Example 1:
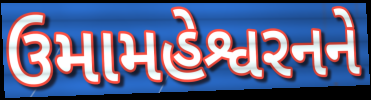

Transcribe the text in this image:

ઉમામહેશ્વરનને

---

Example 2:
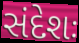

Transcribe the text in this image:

સંદેશઃ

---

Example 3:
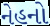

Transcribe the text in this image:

નેહનો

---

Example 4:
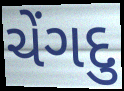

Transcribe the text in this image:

ચેંગદુ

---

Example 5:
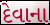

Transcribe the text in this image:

દેવાના